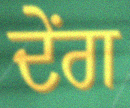
ਦੇਂਗ